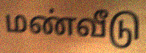
மண்வீடு